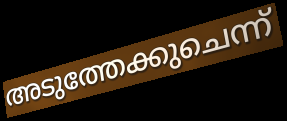
അടുത്തേക്കുചെന്ന്